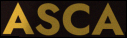
ASCA